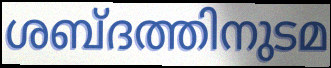
ശബ്ദത്തിനുടമ